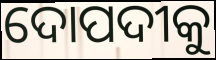
ଦୋପଦୀକୁ